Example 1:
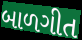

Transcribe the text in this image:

બાળગીત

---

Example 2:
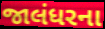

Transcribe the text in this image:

જાલંધરના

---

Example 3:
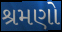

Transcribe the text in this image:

શ્રમણો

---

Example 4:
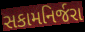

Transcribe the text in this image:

સકામનિર્જરા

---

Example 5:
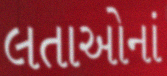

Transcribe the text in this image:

લતાઓનાં